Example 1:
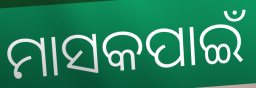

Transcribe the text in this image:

ମାସକପାଇଁ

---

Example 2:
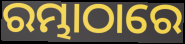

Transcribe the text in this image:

ରମ୍ଭାଠାରେ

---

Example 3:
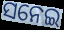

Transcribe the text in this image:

ସନେଇ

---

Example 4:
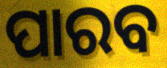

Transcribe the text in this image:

ପାରବ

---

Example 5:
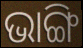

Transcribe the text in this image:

ଭାଙ୍ଗି